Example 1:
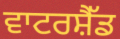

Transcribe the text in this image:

ਵਾਟਰਸ਼ੈੱਡ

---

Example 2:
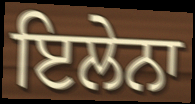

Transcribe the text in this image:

ਇਲੇਨਾ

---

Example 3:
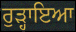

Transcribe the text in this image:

ਰੁੜ੍ਹਾਇਆ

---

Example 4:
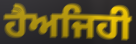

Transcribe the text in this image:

ਹੈਅਜਿਹੀ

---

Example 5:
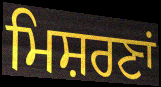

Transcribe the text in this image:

ਮਿਸ਼ਰਣਾਂ